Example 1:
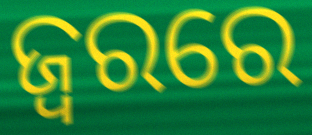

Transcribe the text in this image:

ଜ୍ବରରେ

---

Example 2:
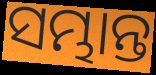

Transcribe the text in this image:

ସମ୍ଭାନ୍ତ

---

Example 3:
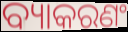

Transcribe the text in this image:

ବ୍ୟାକରଣଂ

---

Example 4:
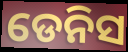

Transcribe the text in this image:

ଡେନିସ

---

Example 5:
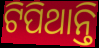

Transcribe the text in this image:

ଟିପିଥାନ୍ତି